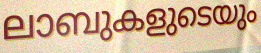
ലാബുകളുടെയും